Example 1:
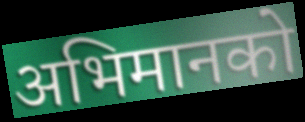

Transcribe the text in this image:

अभिमानको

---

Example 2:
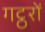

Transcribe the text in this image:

गट्ठरों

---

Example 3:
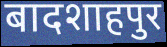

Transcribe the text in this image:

बादशाहपुर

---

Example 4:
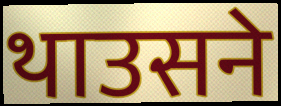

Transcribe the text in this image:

थाउसने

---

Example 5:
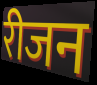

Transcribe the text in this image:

रीजन